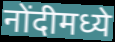
नोंदीमध्ये